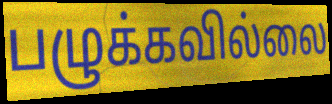
பழுக்கவில்லை